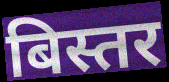
बिस्तर